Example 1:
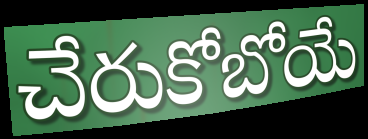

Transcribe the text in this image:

చేరుకోబోయే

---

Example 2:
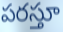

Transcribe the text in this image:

పరస్తూ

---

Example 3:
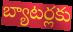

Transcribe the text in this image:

బ్యాటర్లకు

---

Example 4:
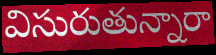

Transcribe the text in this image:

విసురుతున్నారా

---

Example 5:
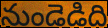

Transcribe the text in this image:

నుండెడిది